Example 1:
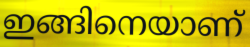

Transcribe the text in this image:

ഇങ്ങിനെയാണ്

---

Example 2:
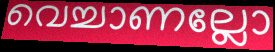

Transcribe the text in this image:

വെച്ചാണല്ലോ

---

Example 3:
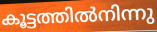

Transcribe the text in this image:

കൂട്ടത്തിൽനിന്നു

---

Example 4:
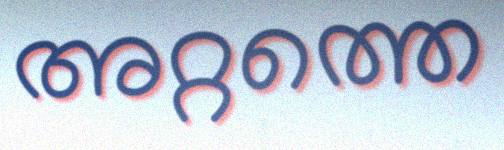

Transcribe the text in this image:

അറ്റത്തെ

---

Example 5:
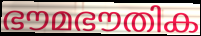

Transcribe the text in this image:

ഭൗമഭൗതിക